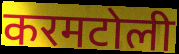
करमटोली